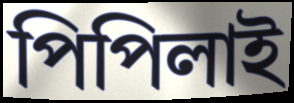
পিপিলাই